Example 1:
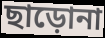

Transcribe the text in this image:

ছাড়োনা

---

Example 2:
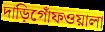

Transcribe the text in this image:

দাড়িগোঁফওয়ালা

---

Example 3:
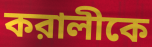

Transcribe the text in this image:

করালীকে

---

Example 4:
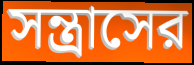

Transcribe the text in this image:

সন্ত্রাসের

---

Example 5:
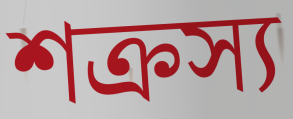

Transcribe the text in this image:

শক্রস্য